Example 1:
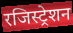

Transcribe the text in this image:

रजिस्ट्रेशन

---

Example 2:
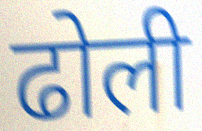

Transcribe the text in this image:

ढोली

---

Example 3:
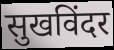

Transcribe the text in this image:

सुखविंदर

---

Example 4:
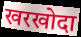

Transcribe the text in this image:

खरखोदा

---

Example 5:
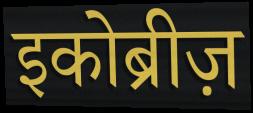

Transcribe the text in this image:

इकोब्रीज़